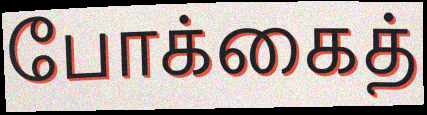
போக்கைத்